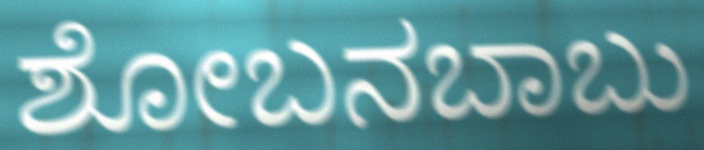
ಶೋಬನಬಾಬು